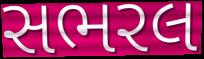
સભરલ